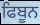
ਫਿਬੂਨ